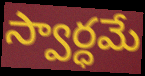
స్వార్ధమే